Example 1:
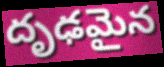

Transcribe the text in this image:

దృఢమైన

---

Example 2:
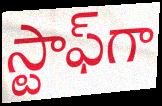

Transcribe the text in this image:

స్టాఫ్‌గా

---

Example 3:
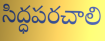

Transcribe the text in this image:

సిద్ధపరచాలి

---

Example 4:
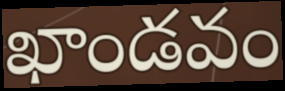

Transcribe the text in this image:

ఖాండవం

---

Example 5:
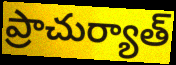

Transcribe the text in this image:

ప్రాచుర్యాత్